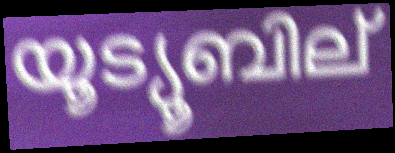
യൂട്യൂബില്